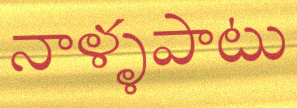
నాళ్ళపాటు